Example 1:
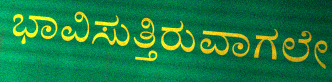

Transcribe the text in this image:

ಭಾವಿಸುತ್ತಿರುವಾಗಲೇ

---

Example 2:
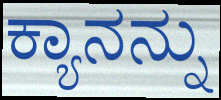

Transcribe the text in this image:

ಕ್ಯಾನನ್ನು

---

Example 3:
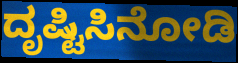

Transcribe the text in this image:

ದೃಷ್ಟಿಸಿನೋಡಿ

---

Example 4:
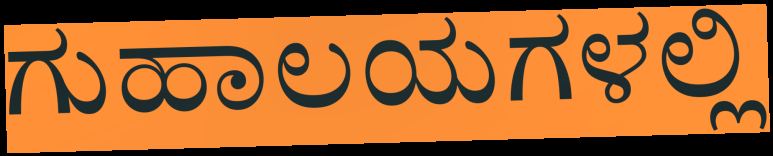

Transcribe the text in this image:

ಗುಹಾಲಯಗಳಲ್ಲಿ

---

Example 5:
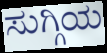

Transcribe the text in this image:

ಸುಗ್ಗಿಯ